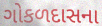
ગોકળદાસના